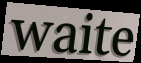
waite